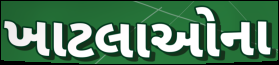
ખાટલાઓના